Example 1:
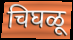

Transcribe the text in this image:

चिघळू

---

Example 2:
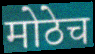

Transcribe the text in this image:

मोठेच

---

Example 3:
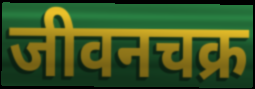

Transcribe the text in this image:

जीवनचक्र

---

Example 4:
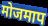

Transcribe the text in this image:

मोजमाप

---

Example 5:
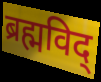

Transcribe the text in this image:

ब्रह्मविद्